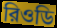
রিওডি